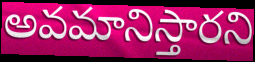
అవమానిస్తారని